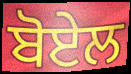
ਬੋਏਲ